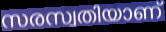
സരസ്വതിയാണ്